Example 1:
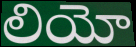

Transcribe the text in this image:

లియో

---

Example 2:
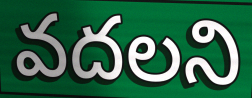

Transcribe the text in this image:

వదలని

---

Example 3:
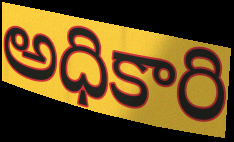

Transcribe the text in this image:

అధికారి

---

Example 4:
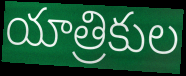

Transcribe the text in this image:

యాత్రికుల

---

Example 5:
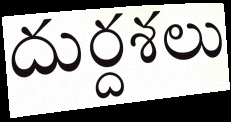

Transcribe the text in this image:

దుర్దశలు